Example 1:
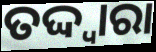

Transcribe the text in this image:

ତଦ୍ଦ୍ଵାରା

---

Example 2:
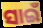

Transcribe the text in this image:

ସାଇଁ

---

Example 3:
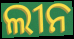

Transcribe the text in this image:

ଲୀନ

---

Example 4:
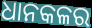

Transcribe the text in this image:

ଧାନକଳର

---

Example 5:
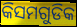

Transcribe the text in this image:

କିସମଗୁଡିକ